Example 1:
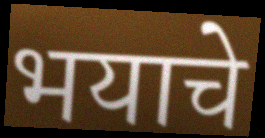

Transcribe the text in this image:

भयाचे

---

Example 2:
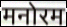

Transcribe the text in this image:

मनोरम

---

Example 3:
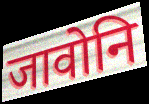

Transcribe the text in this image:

जावोनि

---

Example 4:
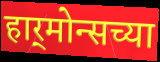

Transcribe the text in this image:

हार्मोन्सच्या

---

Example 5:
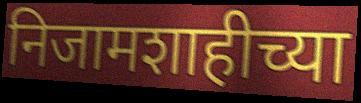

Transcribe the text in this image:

निजामशाहीच्या